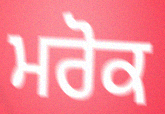
ਮਰੋਕ